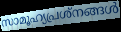
സാമൂഹ്യപ്രശ്നങ്ങൾ